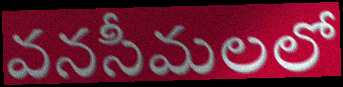
వనసీమలలో